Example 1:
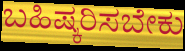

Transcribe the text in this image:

ಬಹಿಷ್ಕರಿಸಬೇಕು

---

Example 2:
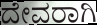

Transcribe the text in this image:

ದೇವರಾಗಿ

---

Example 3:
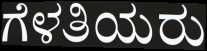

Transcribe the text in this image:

ಗೆಳತಿಯರು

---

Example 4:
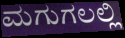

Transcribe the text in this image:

ಮಗುಗಲಲ್ಲಿ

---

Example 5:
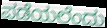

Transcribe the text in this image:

ಪಡೆಯಲೆಂದು